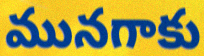
మునగాకు